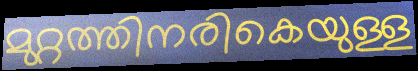
മുറ്റത്തിനരികെയുള്ള